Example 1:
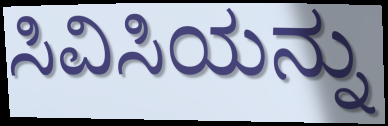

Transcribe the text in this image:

ಸಿವಿಸಿಯನ್ನು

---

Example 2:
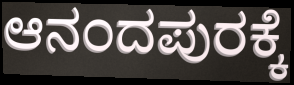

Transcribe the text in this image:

ಆನಂದಪುರಕ್ಕೆ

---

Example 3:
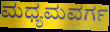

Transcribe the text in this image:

ಮಧ್ಯಮವರ್ಗ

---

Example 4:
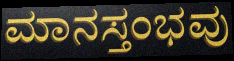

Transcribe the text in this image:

ಮಾನಸ್ತಂಭವು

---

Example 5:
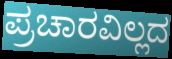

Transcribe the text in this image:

ಪ್ರಚಾರವಿಲ್ಲದ